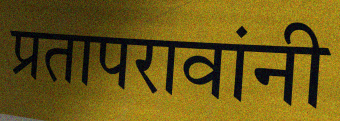
प्रतापरावांनी